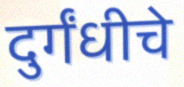
दुर्गंधीचे